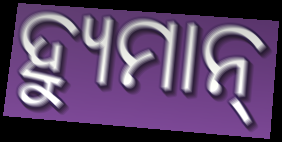
ହ୍ୟୁମାନ୍